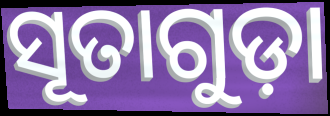
ସୂତାଗୁଡ଼ା